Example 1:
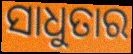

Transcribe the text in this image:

ସାଧୁତାର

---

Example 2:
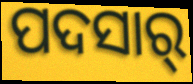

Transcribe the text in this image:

ପଦସାର୍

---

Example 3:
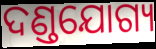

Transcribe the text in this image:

ଦଣ୍ଡଯୋଗ୍ୟ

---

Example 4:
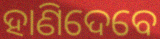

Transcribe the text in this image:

ହାଣିଦେବେ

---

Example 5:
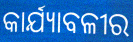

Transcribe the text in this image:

କାର୍ଯ୍ୟାବଳୀର